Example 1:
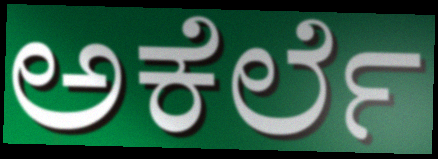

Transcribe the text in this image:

ಅಕೆರ್ಲೆ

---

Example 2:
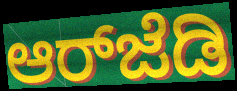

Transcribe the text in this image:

ಆರ್‌ಜೆಡಿ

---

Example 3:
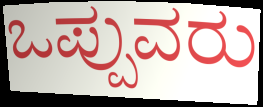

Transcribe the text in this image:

ಒಪ್ಪುವರು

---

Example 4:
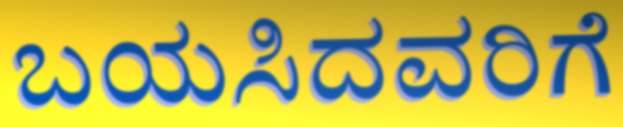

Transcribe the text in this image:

ಬಯಸಿದವರಿಗೆ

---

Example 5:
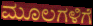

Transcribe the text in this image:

ಮೂಲಗಳಿಗೆ